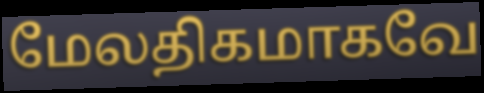
மேலதிகமாகவே